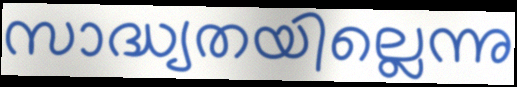
സാദ്ധ്യതയില്ലെന്നു